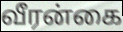
வீரன்கை